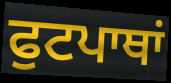
ਫੁਟਪਾਥਾਂ